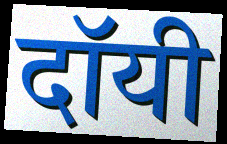
दॉयी